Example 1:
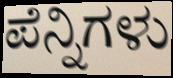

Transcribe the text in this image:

ಪೆನ್ನಿಗಳು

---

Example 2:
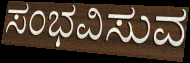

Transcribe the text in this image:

ಸಂಭವಿಸುವ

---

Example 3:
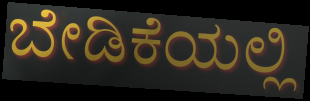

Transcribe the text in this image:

ಬೇಡಿಕೆಯಲ್ಲಿ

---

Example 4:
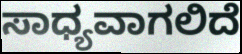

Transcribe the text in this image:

ಸಾಧ್ಯವಾಗಲಿದೆ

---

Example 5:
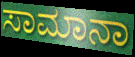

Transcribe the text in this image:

ಸಾಮಾನಾ